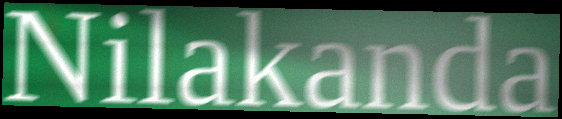
Nilakanda